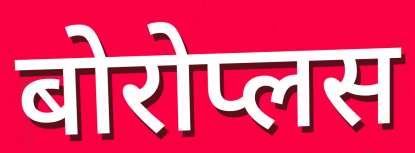
बोरोप्लस